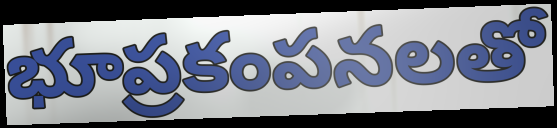
భూప్రకంపనలతో